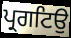
ਪ੍ਰਗਟਿਉ